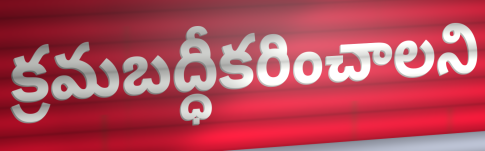
క్రమబద్ధీకరించాలని